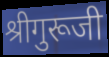
श्रीगुरूजी